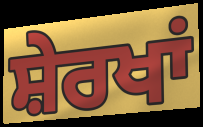
ਸ਼ੇਰਖਾਂ